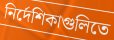
নির্দেশিকাগুলিতে